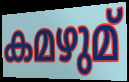
കമഴുമ്